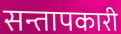
सन्तापकारी